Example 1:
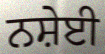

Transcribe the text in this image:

ਨਸ਼ੇਈ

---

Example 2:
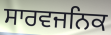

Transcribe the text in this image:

ਸਾਰਵਜਨਿਕ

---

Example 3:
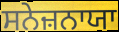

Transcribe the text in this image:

ਸਨੇਜ਼ਨਾਯਾ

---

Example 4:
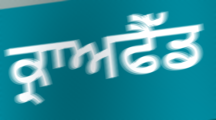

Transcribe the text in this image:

ਕ੍ਰਾਅਫੈੱਡ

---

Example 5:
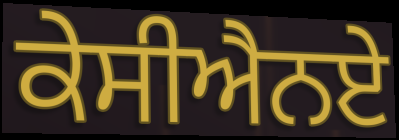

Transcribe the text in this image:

ਕੇਸੀਐਨਏ